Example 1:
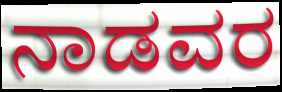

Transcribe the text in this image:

ನಾಡವರ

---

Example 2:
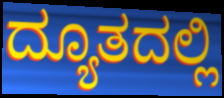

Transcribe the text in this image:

ದ್ಯೂತದಲ್ಲಿ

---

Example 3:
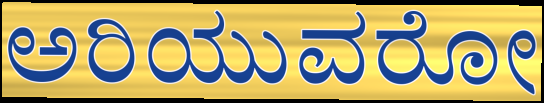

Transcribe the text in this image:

ಅರಿಯುವರೋ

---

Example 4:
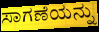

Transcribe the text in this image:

ಸಾಗಣೆಯನ್ನು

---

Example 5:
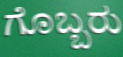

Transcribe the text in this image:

ಗೊಬ್ಬರು